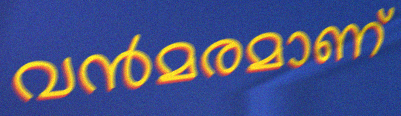
വൻമരമാണ്